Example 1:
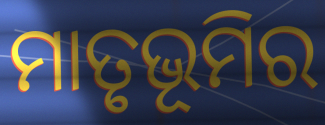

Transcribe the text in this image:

ମାତୃଭୂମିର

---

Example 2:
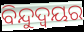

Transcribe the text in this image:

ବିନ୍ଦୁଦ୍ବୟର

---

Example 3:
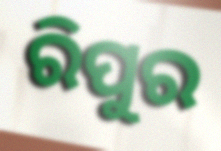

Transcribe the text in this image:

ରିପୁର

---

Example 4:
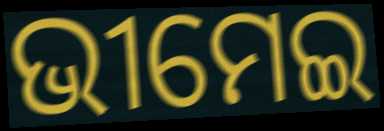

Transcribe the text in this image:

ଭୀମେଇ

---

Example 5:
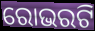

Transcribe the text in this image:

ରୋଭରଟି